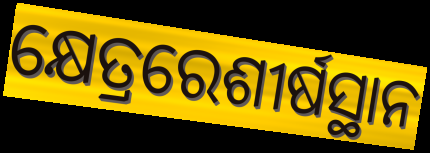
କ୍ଷେତ୍ରରେଶୀର୍ଷସ୍ଥାନ